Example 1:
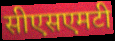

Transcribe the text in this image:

सीएसएमटी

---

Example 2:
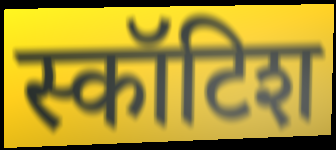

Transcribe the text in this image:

स्कॉटिश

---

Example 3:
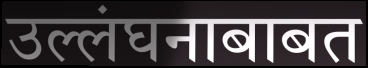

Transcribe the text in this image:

उल्लंघनाबाबत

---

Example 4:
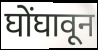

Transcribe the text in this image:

घोंघावून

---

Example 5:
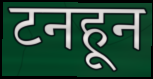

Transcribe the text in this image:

टनहून